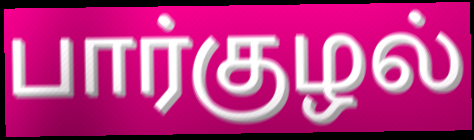
பார்குழல்